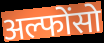
अल्फोंसो